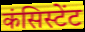
कंसिस्टेंट